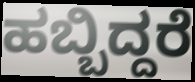
ಹಬ್ಬಿದ್ದರೆ